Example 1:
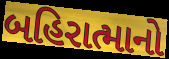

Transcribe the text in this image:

બહિરાત્માનો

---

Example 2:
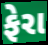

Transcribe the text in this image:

ફેરા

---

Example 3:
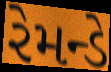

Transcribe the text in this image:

રેમન્ડે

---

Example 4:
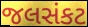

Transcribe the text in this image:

જલસંકટ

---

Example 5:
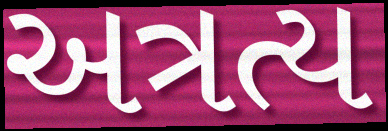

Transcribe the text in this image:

અત્રત્ય